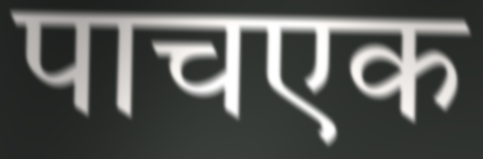
पाचएक